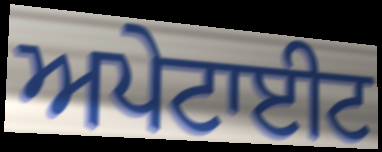
ਅਪੇਟਾਈਟ